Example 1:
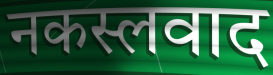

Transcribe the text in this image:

नकस्लवाद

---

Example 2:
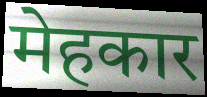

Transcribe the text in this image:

मेहकार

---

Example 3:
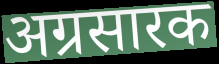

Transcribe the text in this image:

अग्रसारक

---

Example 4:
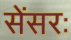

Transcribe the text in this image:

सेंसरः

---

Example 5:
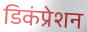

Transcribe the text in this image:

डिकंप्रेशन